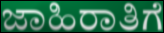
ಜಾಹಿರಾತಿಗೆ